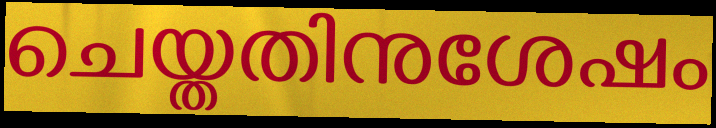
ചെയ്തതിനുശേഷം